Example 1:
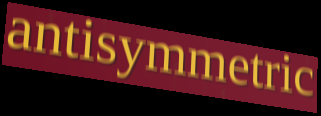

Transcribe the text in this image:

antisymmetric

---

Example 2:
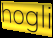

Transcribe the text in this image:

hogli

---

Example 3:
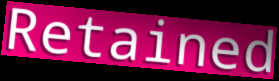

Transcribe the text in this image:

Retained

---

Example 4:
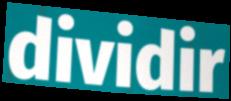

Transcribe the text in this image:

dividir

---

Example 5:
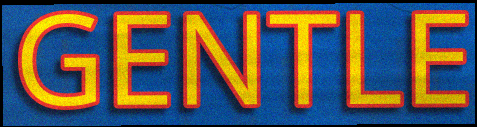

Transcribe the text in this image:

GENTLE